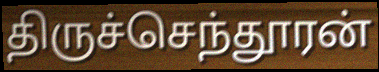
திருச்செந்தூரன்